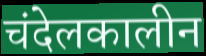
चंदेलकालीन